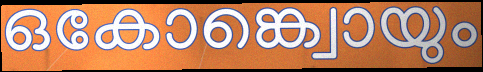
ഒകോങ്ക്വൊയും